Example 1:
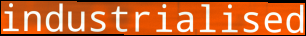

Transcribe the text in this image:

industrialised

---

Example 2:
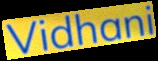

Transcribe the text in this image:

Vidhani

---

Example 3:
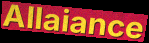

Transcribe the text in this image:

Allaiance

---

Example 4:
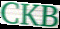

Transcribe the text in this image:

CKB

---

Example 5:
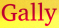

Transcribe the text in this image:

Gally